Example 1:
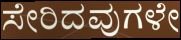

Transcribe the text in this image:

ಸೇರಿದವುಗಳೇ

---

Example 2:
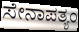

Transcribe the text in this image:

ಸೇನಾಪತ್ಯಂ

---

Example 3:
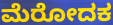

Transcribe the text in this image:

ಮೆರೋದಕ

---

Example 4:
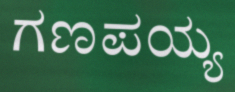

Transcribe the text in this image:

ಗಣಪಯ್ಯ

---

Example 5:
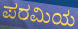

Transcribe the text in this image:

ಪರಮಿಯ